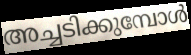
അച്ചടിക്കുമ്പോൾ